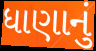
ધાણાનું